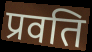
प्रवति